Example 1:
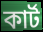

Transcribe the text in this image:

কাৰ্ট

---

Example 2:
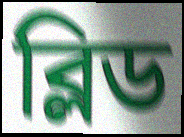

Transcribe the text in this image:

ব্লিড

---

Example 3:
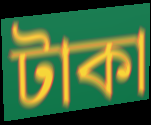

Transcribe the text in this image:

টাকা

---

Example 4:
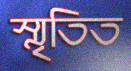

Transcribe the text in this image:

স্মৃতিত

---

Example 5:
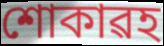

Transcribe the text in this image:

শোকাৱহ